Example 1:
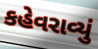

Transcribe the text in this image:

કહેવરાવ્યું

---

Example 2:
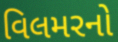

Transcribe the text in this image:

વિલમરનો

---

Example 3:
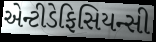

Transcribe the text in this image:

એન્ટીડેફિસિયન્સી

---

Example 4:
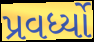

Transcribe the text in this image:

પ્રવર્ધ્યો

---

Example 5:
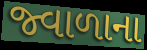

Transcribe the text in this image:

જ્વાળાના